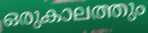
ഒരുകാലത്തും